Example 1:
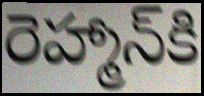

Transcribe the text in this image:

రెహ్మాన్‌కి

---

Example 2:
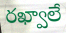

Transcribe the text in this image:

రఖ్వాలే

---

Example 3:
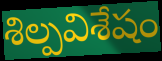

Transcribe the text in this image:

శిల్పవిశేషం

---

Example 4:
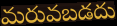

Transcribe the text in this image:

మరువబడదు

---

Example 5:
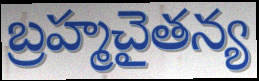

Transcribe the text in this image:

బ్రహ్మచైతన్య